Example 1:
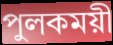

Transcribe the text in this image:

পুলকময়ী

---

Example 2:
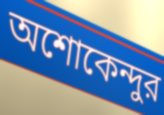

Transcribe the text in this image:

অশোকেন্দুর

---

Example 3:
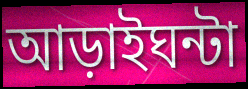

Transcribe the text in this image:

আড়াইঘন্টা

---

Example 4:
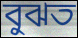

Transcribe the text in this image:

বুঝত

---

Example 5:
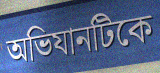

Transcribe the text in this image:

অভিযানটিকে